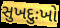
સુખદુઃખો